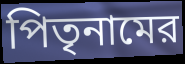
পিতৃনামের